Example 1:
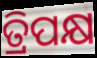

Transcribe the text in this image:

ତ୍ରିପକ୍ଷ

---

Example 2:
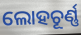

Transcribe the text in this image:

ଲୋହଚୂର୍ଣ୍ଣ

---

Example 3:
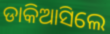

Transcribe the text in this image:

ଡାକିଆସିଲେ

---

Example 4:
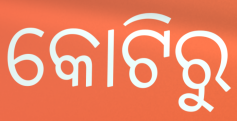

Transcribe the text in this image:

କୋଟିରୁ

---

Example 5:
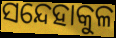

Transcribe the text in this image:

ସନ୍ଦେହାକୁଳ